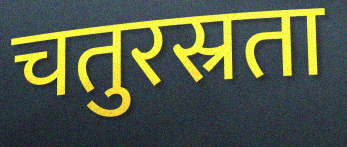
चतुरस्रता